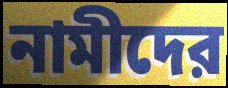
নামীদের